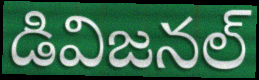
డివిజనల్